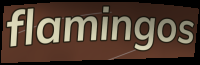
flamingos